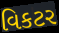
વિકટર